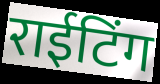
राईटिंग